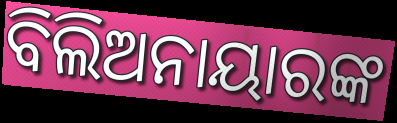
ବିଲିଅନାୟାରଙ୍କ